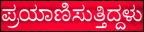
ಪ್ರಯಾಣಿಸುತ್ತಿದ್ದಳು